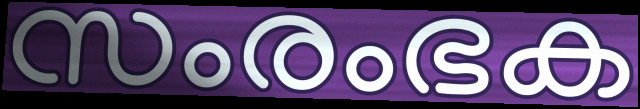
സംരംഭക